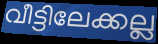
വീട്ടിലേക്കല്ല